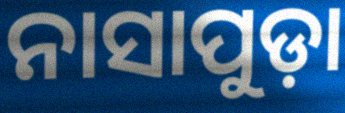
ନାସାପୁଡ଼ା